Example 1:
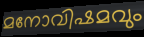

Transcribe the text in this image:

മനോവിഷമവും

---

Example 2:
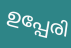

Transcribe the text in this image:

ഉപ്പേരി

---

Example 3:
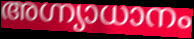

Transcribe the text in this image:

അഗ്ന്യാധാനം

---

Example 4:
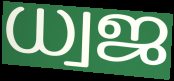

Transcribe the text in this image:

ധ്വജ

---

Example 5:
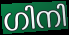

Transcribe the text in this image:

ഗിനി